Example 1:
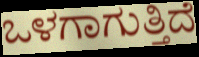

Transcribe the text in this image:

ಒಳಗಾಗುತ್ತಿದೆ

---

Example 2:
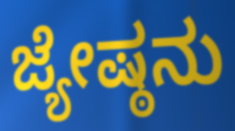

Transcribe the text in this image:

ಜ್ಯೇಷ್ಠನು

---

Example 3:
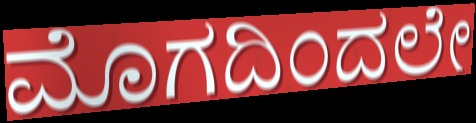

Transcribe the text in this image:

ಮೊಗದಿಂದಲೇ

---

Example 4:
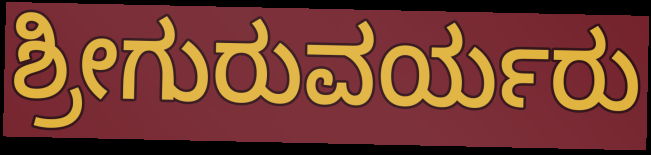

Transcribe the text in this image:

ಶ್ರೀಗುರುವರ್ಯರು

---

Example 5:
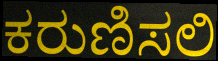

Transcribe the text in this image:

ಕರುಣಿಸಲಿ